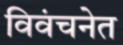
विवंचनेत